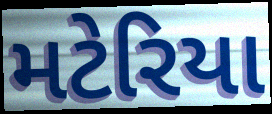
મટેરિયા